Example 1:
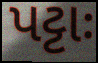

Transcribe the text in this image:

પટ્ટાઃ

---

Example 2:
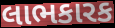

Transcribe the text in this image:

લાભકારક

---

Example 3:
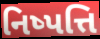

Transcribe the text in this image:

નિષ્પત્તિ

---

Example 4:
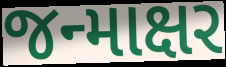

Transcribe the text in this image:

જન્માક્ષર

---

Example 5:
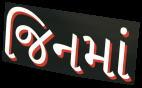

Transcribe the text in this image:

જિનમાં